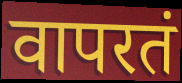
वापरतं